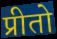
प्रीतो